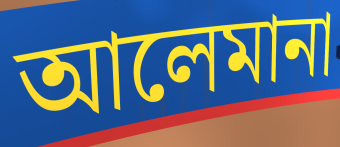
আলেমানা